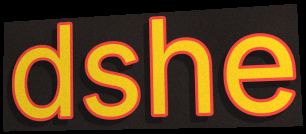
dshe